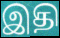
இதி